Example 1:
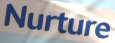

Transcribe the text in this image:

Nurture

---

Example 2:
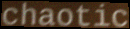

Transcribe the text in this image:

chaotic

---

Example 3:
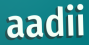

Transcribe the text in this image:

aadii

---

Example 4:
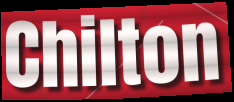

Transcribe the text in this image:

Chilton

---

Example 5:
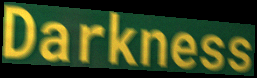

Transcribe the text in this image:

Darkness